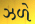
ઝળે